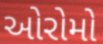
ઓરોમો